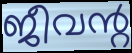
ജീവന്റ